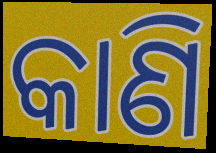
କାଣି